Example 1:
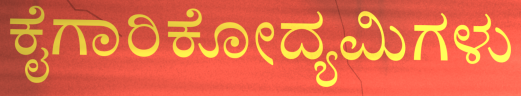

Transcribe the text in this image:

ಕೈಗಾರಿಕೋದ್ಯಮಿಗಳು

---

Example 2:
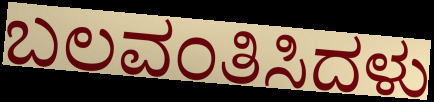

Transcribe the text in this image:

ಬಲವಂತಿಸಿದಳು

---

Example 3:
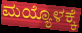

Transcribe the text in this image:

ಮಯ್ಯೊಳಕ್ಕೆ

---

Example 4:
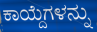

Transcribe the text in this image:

ಕಾಯ್ದೆಗಳನ್ನು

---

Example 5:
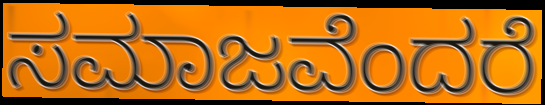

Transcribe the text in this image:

ಸಮಾಜವೆಂದರೆ